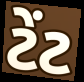
ટેંટ